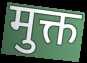
मुक्त